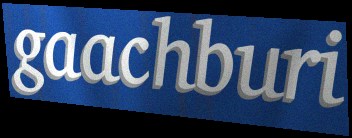
gaachburi